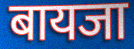
बायजा